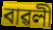
বাৱলী